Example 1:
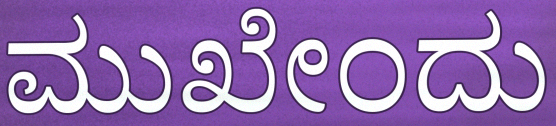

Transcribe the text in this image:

ಮುಖೇಂದು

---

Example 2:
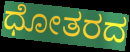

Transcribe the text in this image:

ಧೋತರದ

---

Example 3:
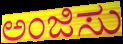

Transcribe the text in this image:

ಅಂಜಿಸು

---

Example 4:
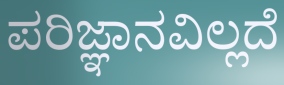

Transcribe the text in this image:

ಪರಿಜ್ಞಾನವಿಲ್ಲದೆ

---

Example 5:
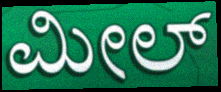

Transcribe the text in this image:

ಮೀಲ್